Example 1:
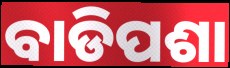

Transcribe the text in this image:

ବାଡିପଶା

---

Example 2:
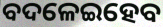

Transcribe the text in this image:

ବଦଳେଇହେବ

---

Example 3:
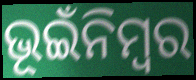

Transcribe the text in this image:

ଭୂଇଁନିମ୍ବର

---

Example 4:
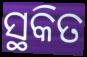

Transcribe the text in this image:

ସ୍ଥକିତ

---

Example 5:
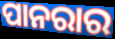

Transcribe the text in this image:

ପାନରାର